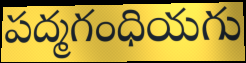
పద్మగంధియగు